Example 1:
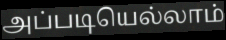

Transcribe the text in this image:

அப்படியெல்லாம்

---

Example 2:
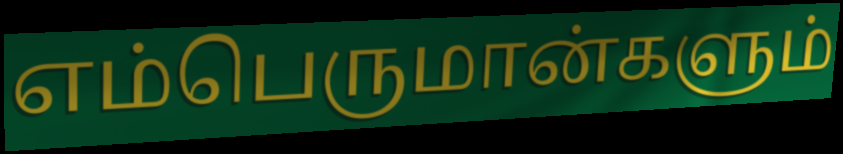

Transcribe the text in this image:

எம்பெருமான்களும்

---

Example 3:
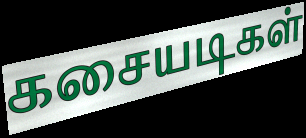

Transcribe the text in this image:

கசையடிகள்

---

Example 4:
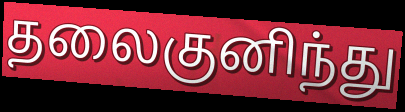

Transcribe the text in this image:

தலைகுனிந்து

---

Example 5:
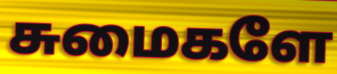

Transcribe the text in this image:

சுமைகளே